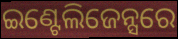
ଇଣ୍ଟେଲିଜେନ୍ସରେ